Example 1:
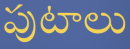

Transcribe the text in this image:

పుటాలు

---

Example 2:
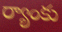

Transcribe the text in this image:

ర్యాంకు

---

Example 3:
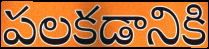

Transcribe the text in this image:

పలకడానికి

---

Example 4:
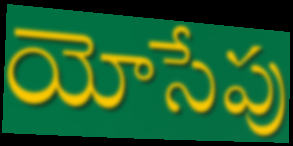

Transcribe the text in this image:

యోసేపు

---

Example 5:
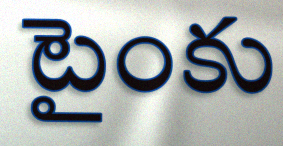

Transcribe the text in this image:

టైంకు